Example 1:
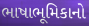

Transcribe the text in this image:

ભાષાભૂમિકાનો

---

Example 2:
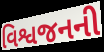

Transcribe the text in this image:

વિશ્વજનની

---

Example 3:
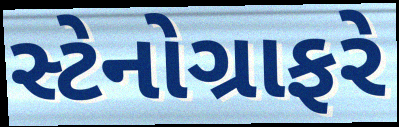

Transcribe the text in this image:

સ્ટેનોગ્રાફરે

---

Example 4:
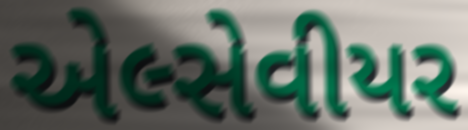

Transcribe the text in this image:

એલ્સેવીયર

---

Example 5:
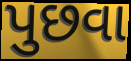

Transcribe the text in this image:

પુછવા